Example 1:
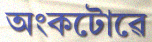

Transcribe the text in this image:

অংকটোৱে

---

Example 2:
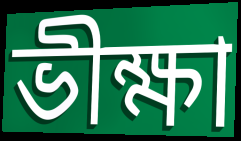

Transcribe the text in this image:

ভীক্ষা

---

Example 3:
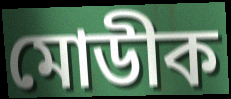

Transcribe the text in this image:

মোডীক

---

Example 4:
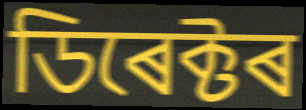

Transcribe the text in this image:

ডিৰেক্টৰ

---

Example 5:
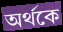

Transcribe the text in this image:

অৰ্থকে